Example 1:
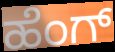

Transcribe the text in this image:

ಹೆಂಗ್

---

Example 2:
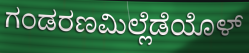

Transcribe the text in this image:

ಗಂಡರಣಮಿಲ್ಲೆಡೆಯೊಳ್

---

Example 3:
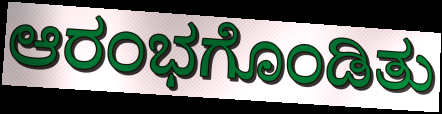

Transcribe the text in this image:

ಆರಂಭಗೊಂಡಿತು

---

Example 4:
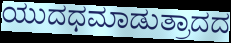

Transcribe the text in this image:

ಯುದಧಮಾಡುತ್ರಾದದ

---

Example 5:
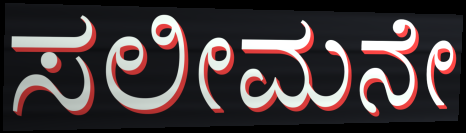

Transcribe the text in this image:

ಸಲೀಮನೇ